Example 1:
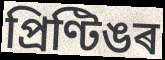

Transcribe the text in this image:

প্ৰিণ্টিঙৰ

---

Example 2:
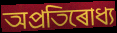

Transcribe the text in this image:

অপ্ৰতিৰোধ্য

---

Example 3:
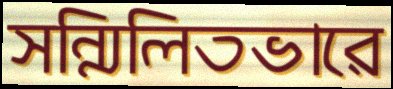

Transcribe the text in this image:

সন্মিলিতভাৱে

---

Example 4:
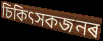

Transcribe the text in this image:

চিকিৎসকজনৰ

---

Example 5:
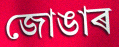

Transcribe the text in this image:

জোঙাৰ